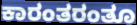
ಕಾರಂತರಂತೂ